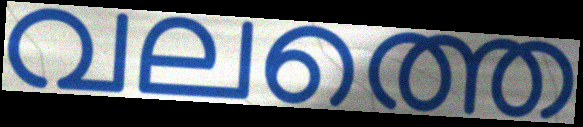
വലത്തെ